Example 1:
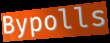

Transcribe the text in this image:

Bypolls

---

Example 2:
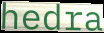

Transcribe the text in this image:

hedra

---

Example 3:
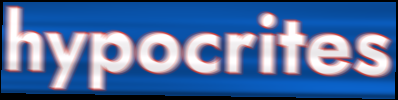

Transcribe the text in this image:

hypocrites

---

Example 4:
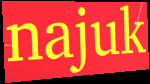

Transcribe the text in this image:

najuk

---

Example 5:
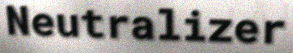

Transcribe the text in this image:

Neutralizer